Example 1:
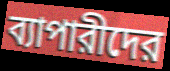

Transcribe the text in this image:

ব্যাপারীদের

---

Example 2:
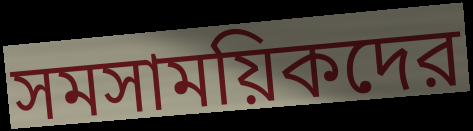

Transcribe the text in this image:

সমসাময়িকদের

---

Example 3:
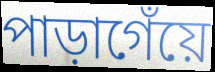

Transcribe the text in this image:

পাড়াগেঁয়ে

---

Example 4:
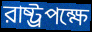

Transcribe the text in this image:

রাষ্ট্রপক্ষে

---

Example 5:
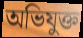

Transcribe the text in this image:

অভিযুক্ত